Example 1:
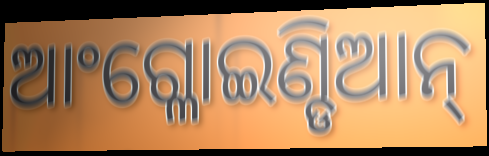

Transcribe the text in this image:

ଆଂଗ୍ଳୋଇଣ୍ଡିଆନ୍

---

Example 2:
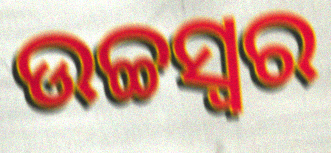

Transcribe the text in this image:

ଉଚ୍ଚସ୍ବର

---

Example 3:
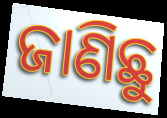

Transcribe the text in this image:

ଜାଣିଛୁ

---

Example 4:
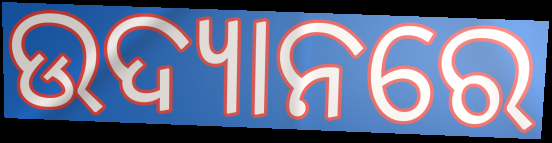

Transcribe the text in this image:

ଉଦ୍ୟାନରେ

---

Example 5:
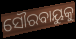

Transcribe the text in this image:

ସୌରବାୟୁକୁ